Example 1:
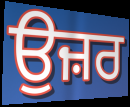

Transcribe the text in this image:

ਉਜ਼ਰ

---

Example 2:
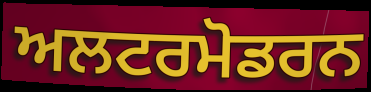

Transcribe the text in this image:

ਅਲਟਰਮੋਡਰਨ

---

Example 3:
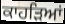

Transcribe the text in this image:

ਕਾਹੜਿਆਂ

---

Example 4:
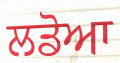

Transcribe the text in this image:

ਲਡੋਆ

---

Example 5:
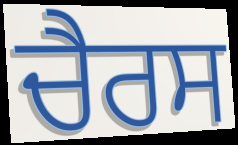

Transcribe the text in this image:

ਚੈਰਸ